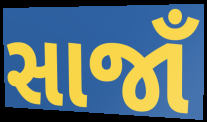
સાજાઁ